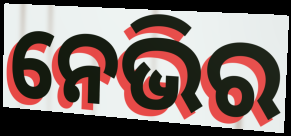
ନେଭିର